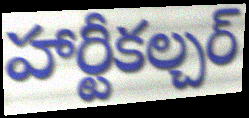
హార్టీకల్చర్